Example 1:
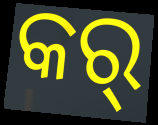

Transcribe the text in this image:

କର୍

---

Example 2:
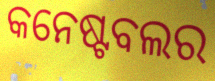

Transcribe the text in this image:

କନେଷ୍ଟବଲର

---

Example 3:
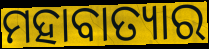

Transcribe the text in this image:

ମହାବାତ୍ୟାର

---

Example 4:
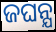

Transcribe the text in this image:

ଜଘନ୍ଯ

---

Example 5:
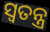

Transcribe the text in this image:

ସ୍ୱତନ୍ତ୍ର